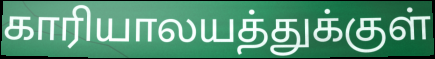
காரியாலயத்துக்குள்